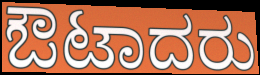
ಔಟಾದರು